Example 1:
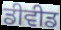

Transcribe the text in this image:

ਡੀਵੀਡ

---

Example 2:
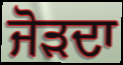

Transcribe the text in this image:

ਜੋੜਦਾ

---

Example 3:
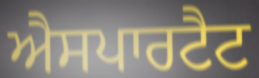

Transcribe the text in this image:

ਐਸਪਾਰਟੈਟ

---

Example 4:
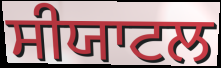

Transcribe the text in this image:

ਸੀਯਾਟਲ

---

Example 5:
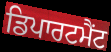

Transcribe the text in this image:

ਡਿਪਾਰਟਮੈਂਟ